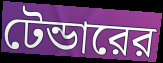
টেন্ডারের